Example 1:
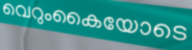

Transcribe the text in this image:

വെറുംകൈയോടെ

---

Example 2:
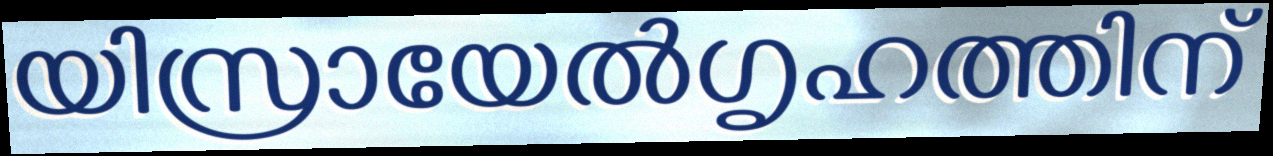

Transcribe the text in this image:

യിസ്രായേൽഗൃഹത്തിന്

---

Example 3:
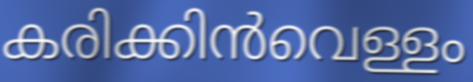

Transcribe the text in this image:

കരിക്കിൻവെള്ളം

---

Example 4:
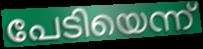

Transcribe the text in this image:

പേടിയെന്ന്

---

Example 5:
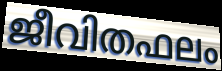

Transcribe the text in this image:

ജീവിതഫലം